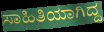
ಸಾಹಿತಿಯಾಗಿದ್ದ